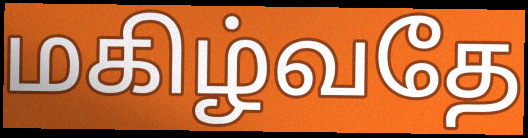
மகிழ்வதே